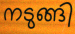
നടുങ്ങി